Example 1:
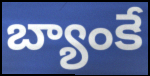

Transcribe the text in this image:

బ్యాంకే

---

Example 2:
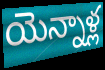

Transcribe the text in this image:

యెన్నాళ్ల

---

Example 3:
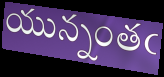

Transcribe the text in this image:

యున్నంతఁ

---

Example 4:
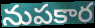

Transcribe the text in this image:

నుపకార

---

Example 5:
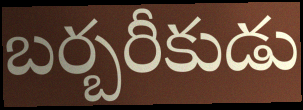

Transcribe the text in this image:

బర్బరీకుడు